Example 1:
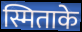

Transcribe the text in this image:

स्मिताके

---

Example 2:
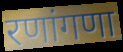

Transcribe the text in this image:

रणांगणा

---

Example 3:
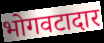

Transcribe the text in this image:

भोगवटादार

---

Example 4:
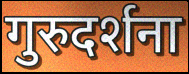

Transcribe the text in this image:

गुरुदर्शना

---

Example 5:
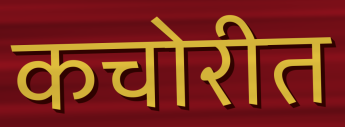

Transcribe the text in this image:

कचोरीत